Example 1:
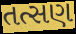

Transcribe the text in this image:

તત્સણ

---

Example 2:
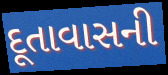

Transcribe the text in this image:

દૂતાવાસની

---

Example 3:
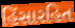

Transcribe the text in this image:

હિંસારહિત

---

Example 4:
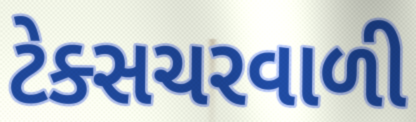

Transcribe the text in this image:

ટેક્સચરવાળી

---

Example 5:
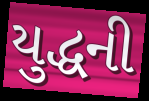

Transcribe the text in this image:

યુદ્ધની